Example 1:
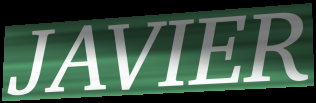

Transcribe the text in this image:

JAVIER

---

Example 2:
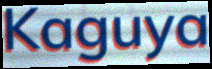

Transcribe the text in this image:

Kaguya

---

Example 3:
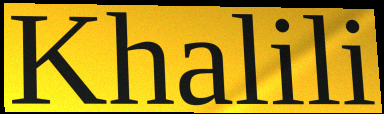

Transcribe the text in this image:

Khalili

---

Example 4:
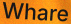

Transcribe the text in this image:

Whare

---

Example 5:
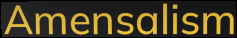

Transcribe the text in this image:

Amensalism